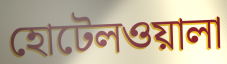
হোটেলওয়ালা